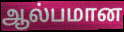
ஆல்பமான